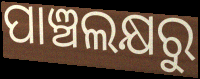
ପାଞ୍ଚଲକ୍ଷରୁ